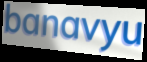
banavyu